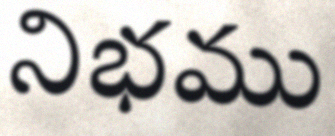
నిభము